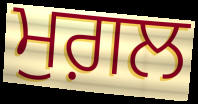
ਮੁਗ਼ਲ